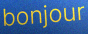
bonjour